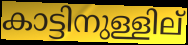
കാട്ടിനുള്ളില്